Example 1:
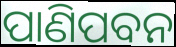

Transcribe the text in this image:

ପାଣିପବନ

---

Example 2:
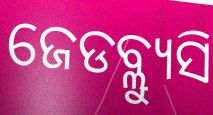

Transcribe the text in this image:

ଜେଡବ୍ଲ୍ୟୁସି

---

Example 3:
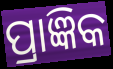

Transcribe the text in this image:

ପ୍ରାଜ୍ଞିକ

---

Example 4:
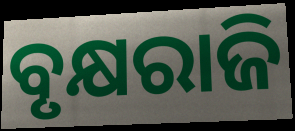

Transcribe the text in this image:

ବୃକ୍ଷରାଜି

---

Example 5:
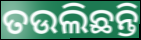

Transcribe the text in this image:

ତଉଲିଛନ୍ତି